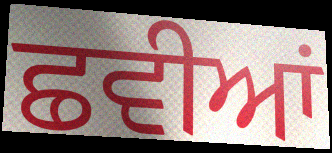
ਛਵੀਆਂ